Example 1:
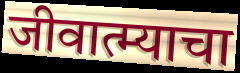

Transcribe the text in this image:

जीवात्म्याचा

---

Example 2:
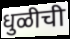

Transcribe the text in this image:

धुळीची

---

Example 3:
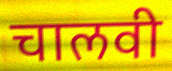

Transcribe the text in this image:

चालवी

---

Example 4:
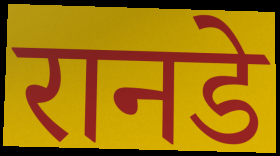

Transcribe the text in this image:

रानडे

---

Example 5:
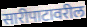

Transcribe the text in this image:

सारीपाटावरील